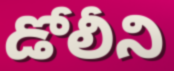
డోలీని